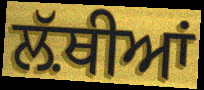
ਲ਼ੱਥੀਆਂ